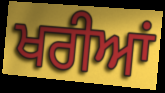
ਖਰੀਆਂ